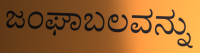
ಜಂಘಾಬಲವನ್ನು